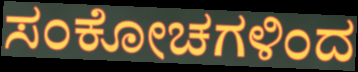
ಸಂಕೋಚಗಳಿಂದ